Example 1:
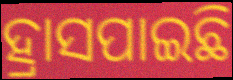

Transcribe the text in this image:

ହ୍ରାସପାଇଛି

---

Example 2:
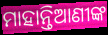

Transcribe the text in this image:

ମାହାନ୍ତିଆଣୀଙ୍କ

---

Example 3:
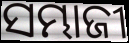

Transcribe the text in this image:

ସମ୍ଭାଜୀ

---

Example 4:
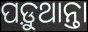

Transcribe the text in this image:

ପଡ଼ୁଥାନ୍ତା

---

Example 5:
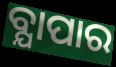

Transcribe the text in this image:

ବ୍ଯାପାର